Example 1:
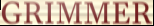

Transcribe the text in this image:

GRIMMER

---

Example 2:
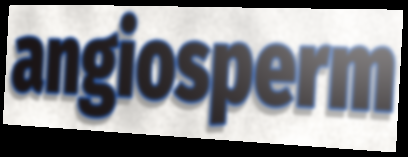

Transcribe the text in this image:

angiosperm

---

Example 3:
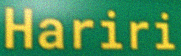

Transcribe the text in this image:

Hariri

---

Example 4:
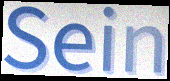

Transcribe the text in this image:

Sein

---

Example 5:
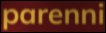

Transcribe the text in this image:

parenni